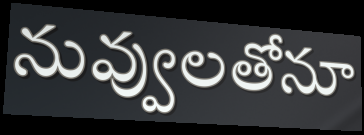
నువ్వులతోనూ